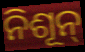
ନିଶୂନ୍